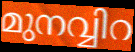
മുനവ്വിറ